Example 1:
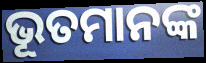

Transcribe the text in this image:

ଭୂତମାନଙ୍କ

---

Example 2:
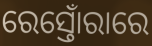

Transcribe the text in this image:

ରେସ୍ତୋଁରାରେ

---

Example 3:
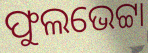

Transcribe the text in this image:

ଫୁଲଭେଟ୍ଟା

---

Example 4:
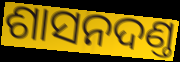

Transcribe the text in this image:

ଶାସନଦଣ୍ତ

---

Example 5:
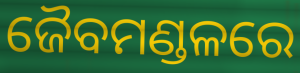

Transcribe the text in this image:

ଜୈବମଣ୍ଡଳରେ